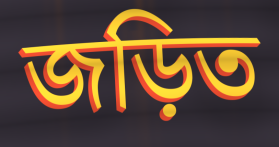
জড়িত